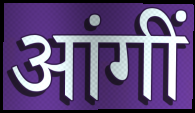
आंगीं